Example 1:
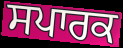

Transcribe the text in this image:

ਸਪਾਰਕ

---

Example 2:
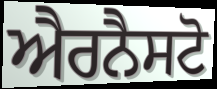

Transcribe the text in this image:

ਐਰਨੈਸਟੋ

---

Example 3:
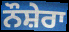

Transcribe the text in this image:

ਨੌਸ਼ੇਰਾ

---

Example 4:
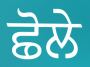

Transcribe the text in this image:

ਛੋਲੇ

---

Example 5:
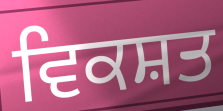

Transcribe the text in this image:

ਵਿਕਸ਼ਤ